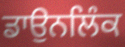
ਡਾਉਨਲਿੰਕ